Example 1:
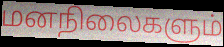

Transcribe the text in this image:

மனநிலைகளும்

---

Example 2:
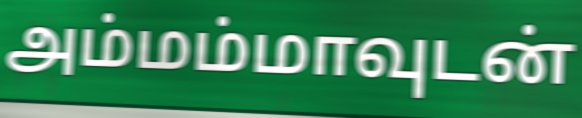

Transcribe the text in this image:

அம்மம்மாவுடன்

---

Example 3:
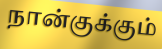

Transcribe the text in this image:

நான்குக்கும்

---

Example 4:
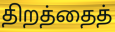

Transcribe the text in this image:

திறத்தைத்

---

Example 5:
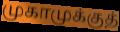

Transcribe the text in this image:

முகாமுக்குத்